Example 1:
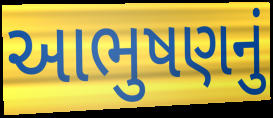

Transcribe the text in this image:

આભુષણનું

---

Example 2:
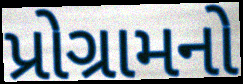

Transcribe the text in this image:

પ્રોગ્રામનો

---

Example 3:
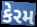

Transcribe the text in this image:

કેરમ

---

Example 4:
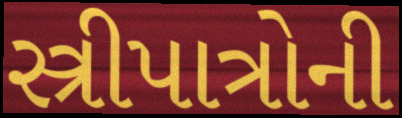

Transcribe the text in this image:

સ્ત્રીપાત્રોની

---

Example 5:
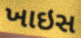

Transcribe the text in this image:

ખાઇસ